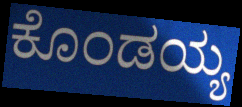
ಕೊಂಡಯ್ಯ